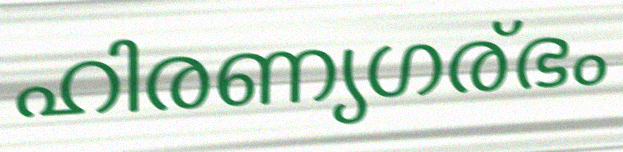
ഹിരണ്യഗര്ഭം